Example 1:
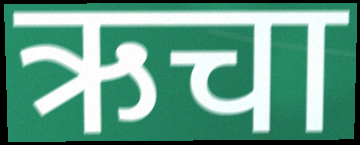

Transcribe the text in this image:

ऋचा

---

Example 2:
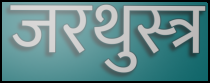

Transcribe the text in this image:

जरथुस्‍त्र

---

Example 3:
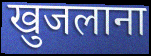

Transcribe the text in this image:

खुजलाना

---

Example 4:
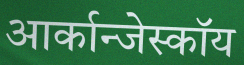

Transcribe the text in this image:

आर्कान्जेस्कॉय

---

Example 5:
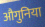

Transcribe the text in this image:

औगुनिया